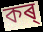
কৰ্